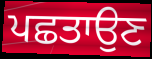
ਪਛਤਾਉਣ